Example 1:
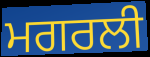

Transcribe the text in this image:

ਮਗਰਲੀ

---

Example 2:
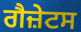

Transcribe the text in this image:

ਗੈਜ਼ੇਟਸ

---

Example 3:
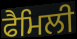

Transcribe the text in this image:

ਫੈਮਿਲੀ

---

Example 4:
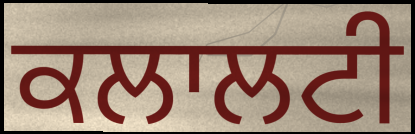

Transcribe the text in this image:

ਕਲਾਲਟੀ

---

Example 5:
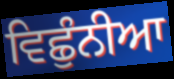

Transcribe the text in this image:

ਵਿਛੁੰਨੀਆ